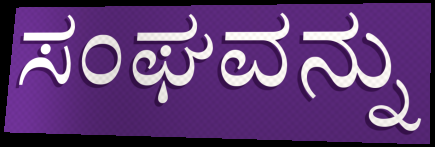
ಸಂಘವನ್ನು